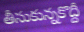
తీసుకున్నకొద్దీ